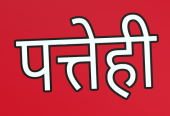
पत्तेही